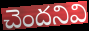
చెందనివి